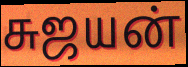
சுஜயன்